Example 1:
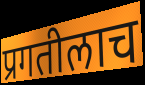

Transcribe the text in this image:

प्रगतीलाच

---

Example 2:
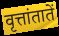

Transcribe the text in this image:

वृत्तांतातें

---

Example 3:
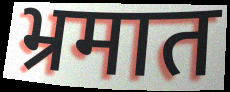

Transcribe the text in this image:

भ्रमात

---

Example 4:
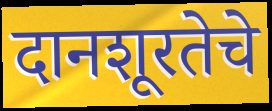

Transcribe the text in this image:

दानशूरतेचे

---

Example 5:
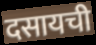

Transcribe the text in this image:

दसायची